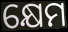
କ୍ଷେମ